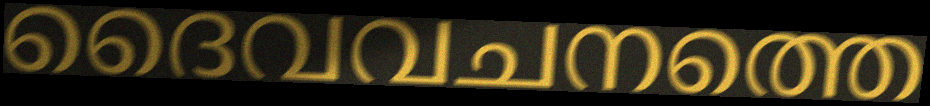
ദൈവവചനത്തെ